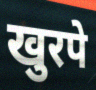
खुरपे